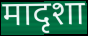
मादृशा